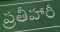
ప్రతీహారీ